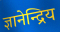
ज्ञानेन्द्रिय